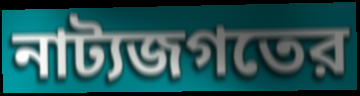
নাট্যজগতের